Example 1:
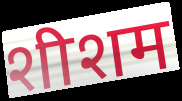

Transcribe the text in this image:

शीशम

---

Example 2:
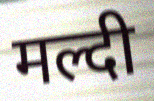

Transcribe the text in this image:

मल्दी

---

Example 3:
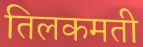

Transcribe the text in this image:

तिलकमती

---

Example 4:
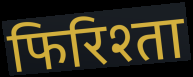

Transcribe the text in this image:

फिरिश्ता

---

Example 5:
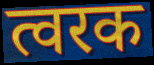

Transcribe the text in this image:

त्वरक